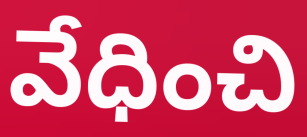
వేధించి